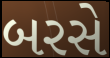
બરસે